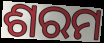
ଶରମ